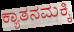
ಕ್ಯಾತನಮಕ್ಕಿ